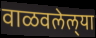
वाळवलेल्या